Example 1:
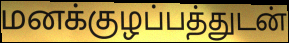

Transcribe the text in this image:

மனக்குழப்பத்துடன்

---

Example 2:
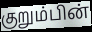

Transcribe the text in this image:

குறும்பின்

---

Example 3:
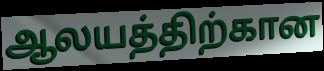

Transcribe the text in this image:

ஆலயத்திற்கான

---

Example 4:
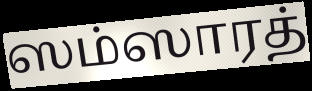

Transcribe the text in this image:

ஸம்ஸாரத்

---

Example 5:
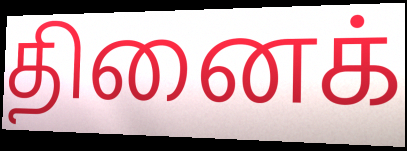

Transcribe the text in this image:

தினைக்